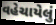
વહેચાયેલું